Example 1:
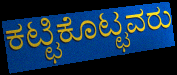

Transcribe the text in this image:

ಕಟ್ಟಿಕೊಟ್ಟವರು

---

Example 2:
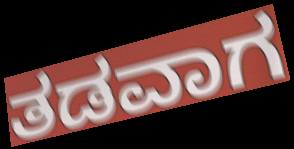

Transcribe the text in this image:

ತಡವಾಗ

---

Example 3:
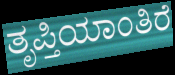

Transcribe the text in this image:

ತೃಪ್ತಿಯಾಂತಿರೆ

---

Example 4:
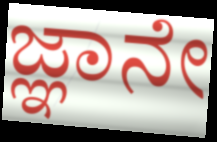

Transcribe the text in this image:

ಜ್ಞಾನೇ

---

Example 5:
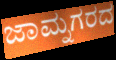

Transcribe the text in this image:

ಜಾಮ್ನಗರದ